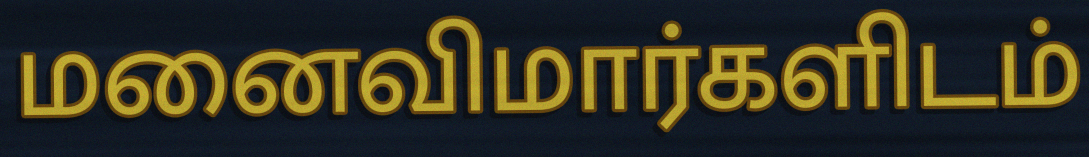
மனைவிமார்களிடம்